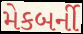
મેકબર્ની